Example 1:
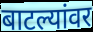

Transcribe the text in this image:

बाटल्यांवर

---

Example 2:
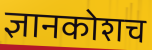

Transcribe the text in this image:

ज्ञानकोशच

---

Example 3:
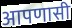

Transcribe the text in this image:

आपणासी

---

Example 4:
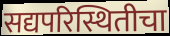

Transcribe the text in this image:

सद्यपरिस्थितीचा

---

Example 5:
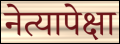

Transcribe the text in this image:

नेत्यापेक्षा